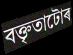
বক্তৃতাটোৰ